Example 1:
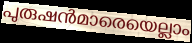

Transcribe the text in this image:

പുരുഷൻമാരെയെല്ലാം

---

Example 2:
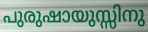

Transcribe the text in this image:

പുരുഷായുസ്സിനു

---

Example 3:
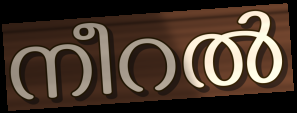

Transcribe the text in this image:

നീറൽ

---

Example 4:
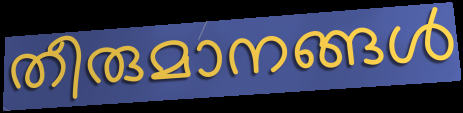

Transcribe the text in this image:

തീരുമാനങ്ങൾ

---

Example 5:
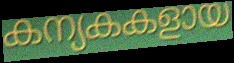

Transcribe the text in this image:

കന്യകകളായ